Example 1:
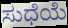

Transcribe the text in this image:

ಸುಧೆಯೆ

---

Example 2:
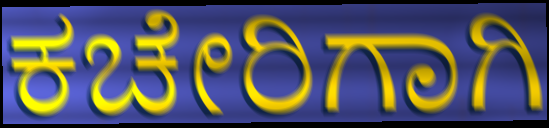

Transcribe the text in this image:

ಕಚೇರಿಗಾಗಿ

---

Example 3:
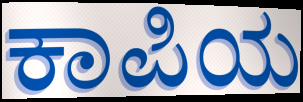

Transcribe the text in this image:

ಕಾಪಿಯ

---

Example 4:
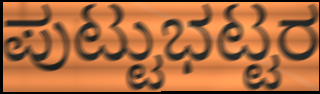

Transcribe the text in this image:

ಪುಟ್ಟುಭಟ್ಟರ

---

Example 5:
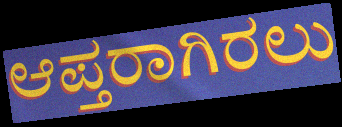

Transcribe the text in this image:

ಆಪ್ತರಾಗಿರಲು